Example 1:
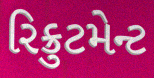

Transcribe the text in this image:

રિક્રુટમેન્ટ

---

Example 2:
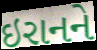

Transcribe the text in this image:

ઇરાનને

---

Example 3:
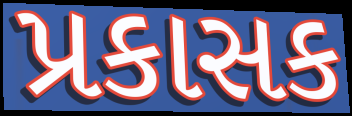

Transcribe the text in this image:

પ્રકાસક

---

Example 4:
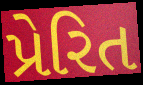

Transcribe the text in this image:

પ્રેરિત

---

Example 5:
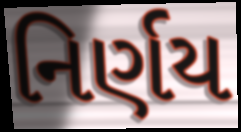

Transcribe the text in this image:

નિર્ણય